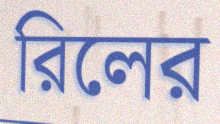
রিলের